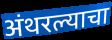
अंथरल्याचा